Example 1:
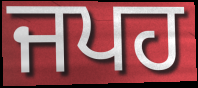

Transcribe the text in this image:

ਜਪਹ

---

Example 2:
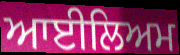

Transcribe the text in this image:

ਆਈਲਿਅਮ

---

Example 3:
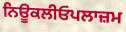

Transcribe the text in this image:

ਨਿਊਕਲੀਓਪਲਾਜ਼ਮ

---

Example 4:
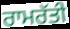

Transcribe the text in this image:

ਰਾਮਰੱਤੀ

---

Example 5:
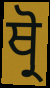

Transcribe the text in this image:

ਥ੍ਰੋ